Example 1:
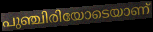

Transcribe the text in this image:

പുഞ്ചിരിയോടെയാണ്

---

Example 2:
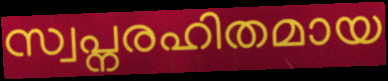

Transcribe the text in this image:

സ്വപ്നരഹിതമായ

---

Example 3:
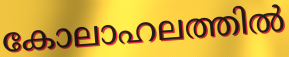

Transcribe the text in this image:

കോലാഹലത്തിൽ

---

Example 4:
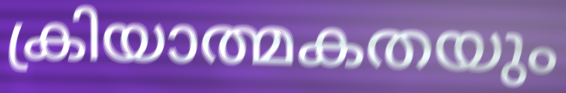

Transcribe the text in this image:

ക്രിയാത്മകതയും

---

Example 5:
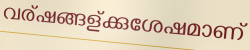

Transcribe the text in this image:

വര്ഷങ്ങള്ക്കുശേഷമാണ്